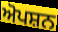
ਅੋਪਸ਼ਨ